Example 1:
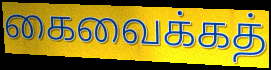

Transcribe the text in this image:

கைவைக்கத்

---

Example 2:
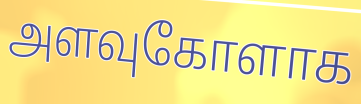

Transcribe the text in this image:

அளவுகோளாக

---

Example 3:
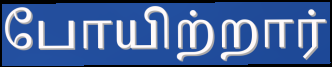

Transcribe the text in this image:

போயிற்றார்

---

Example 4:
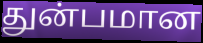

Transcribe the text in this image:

துன்பமான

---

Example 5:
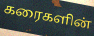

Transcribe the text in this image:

கரைகளின்